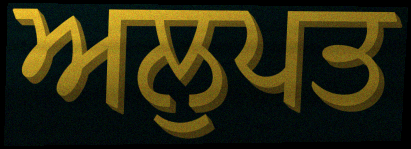
ਅਲੁਪਤ